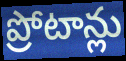
ప్రోటాన్లు